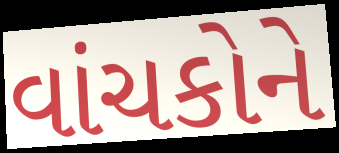
વાંચકોને